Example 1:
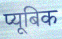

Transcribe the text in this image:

प्यूबिक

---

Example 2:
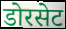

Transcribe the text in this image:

डोरसेट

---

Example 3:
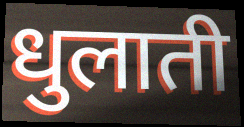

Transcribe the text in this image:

धुलाती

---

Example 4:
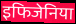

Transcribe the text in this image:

इफिजेनिया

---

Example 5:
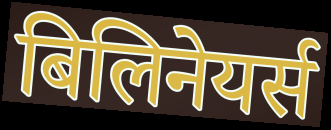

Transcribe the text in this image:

बिलिनेयर्स